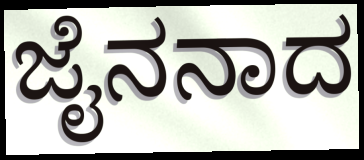
ಜೈನನಾದ